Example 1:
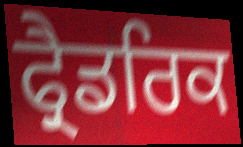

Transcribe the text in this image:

ਫ੍ਰੈਡਰਿਕ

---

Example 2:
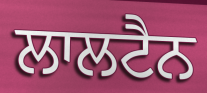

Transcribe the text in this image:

ਲਾਲਟੈਨ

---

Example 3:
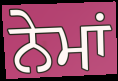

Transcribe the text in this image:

ਨੇਮਾਂ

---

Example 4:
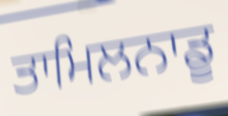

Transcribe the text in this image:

ਤਾਮਿਲਨਾਡੂ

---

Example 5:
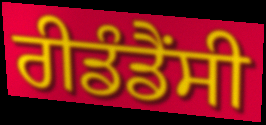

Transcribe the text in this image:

ਰੀਡੰਡੈਂਸੀ